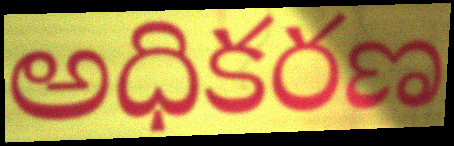
అధికరణ